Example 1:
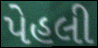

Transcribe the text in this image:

પેહલી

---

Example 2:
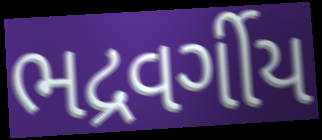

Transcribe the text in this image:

ભદ્રવર્ગીય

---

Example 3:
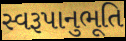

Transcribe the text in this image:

સ્વરૂપાનુભૂતિ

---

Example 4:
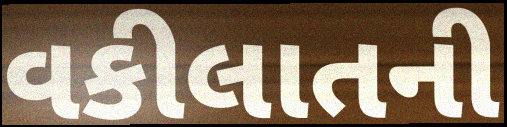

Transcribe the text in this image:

વકીલાતની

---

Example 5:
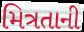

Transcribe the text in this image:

મિત્રતાની